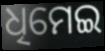
ଧିମେଇ